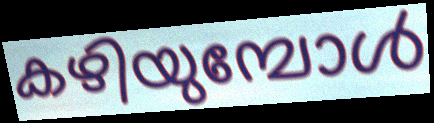
കഴിയുമ്പോൾ